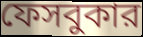
ফেসবুকার